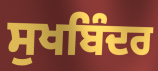
ਸੁਖਬਿੰਦਰ